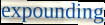
expounding